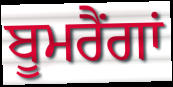
ਬੂਮਰੈਂਗਾਂ